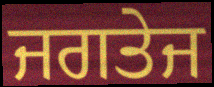
ਜਗਤੇਜ